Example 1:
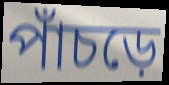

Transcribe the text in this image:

পাঁচড়ে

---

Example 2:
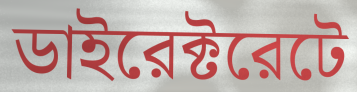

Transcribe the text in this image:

ডাইরেক্টরেটে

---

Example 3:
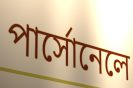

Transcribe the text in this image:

পার্সোনেলে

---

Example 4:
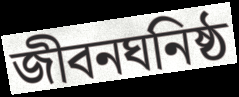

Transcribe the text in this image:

জীবনঘনিষ্ঠ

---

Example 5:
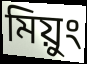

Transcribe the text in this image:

মিয়ুং